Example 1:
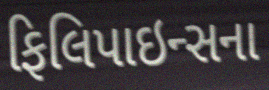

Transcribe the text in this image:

ફિલિપાઇન્સના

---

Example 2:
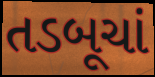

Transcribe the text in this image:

તડબૂચાં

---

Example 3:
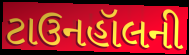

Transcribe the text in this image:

ટાઉનહૉલની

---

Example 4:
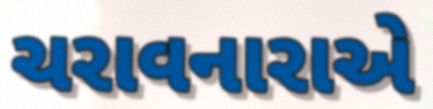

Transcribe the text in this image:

ચરાવનારાએ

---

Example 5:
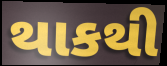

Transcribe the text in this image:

થાકથી